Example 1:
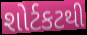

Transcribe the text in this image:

શોર્ટકટથી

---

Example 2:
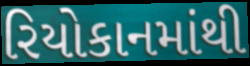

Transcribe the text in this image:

રિયોકાનમાંથી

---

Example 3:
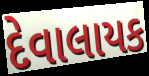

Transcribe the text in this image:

દેવાલાયક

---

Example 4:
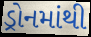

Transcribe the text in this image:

ડ્રોનમાંથી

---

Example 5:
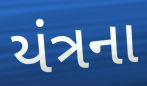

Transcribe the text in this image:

યંત્રના